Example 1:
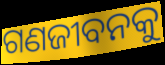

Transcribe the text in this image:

ଗଣଜୀବନକୁ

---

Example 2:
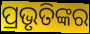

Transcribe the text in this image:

ପ୍ରଭୃତିଙ୍କର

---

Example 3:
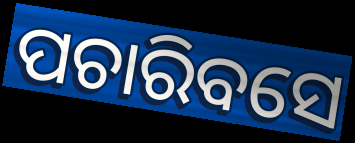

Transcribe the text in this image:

ପଚାରିବସେ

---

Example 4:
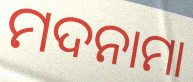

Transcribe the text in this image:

ମଦନାମା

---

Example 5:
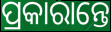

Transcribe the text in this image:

ପ୍ରକାରାନ୍ତେ